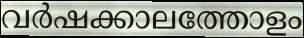
വർഷക്കാലത്തോളം